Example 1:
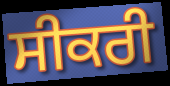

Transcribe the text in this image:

ਸੀਕਰੀ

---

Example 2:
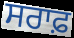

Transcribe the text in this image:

ਸਰਾਫ਼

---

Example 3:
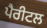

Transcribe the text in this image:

ਪੈਰੀਟਲ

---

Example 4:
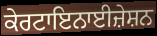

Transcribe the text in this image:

ਕੇਰਟਾਇਨਾਈਜ਼ੇਸ਼ਨ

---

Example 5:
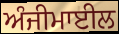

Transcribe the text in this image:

ਅੰਜੀਮਾਈਲ